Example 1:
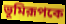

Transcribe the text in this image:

ভূমিরূপকে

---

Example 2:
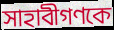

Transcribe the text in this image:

সাহাবীগণকে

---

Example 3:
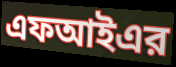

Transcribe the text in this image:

এফআইএর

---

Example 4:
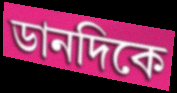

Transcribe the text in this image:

ডানদিকে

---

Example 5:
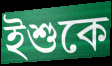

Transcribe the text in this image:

ইশুকে